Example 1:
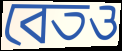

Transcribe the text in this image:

বেতও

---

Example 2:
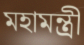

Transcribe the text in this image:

মহামন্ত্রী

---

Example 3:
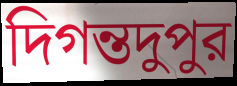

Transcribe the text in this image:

দিগন্তদুপুর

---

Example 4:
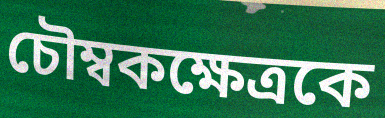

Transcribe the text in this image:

চৌম্বকক্ষেত্রকে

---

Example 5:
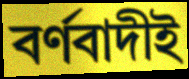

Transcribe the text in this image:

বর্ণবাদীই